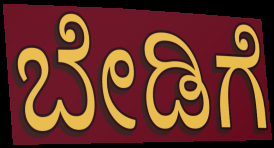
ಬೇಡಿಗೆ